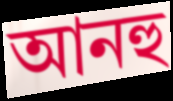
আনহু